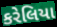
કરેલિયા